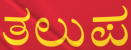
ತಲುಪ